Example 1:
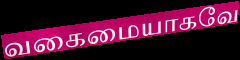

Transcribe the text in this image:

வகைமையாகவே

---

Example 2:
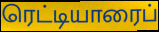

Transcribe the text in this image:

ரெட்டியாரைப்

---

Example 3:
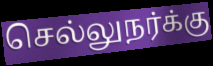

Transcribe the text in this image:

செல்லுநர்க்கு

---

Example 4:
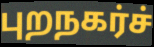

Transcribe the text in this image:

புறநகர்ச்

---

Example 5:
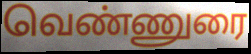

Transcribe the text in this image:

வெண்ணுரை